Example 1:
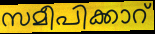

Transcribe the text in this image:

സമീപിക്കാറ്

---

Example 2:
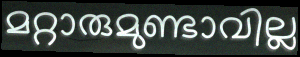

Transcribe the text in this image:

മറ്റാരുമുണ്ടാവില്ല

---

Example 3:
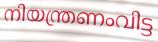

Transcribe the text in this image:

നിയന്ത്രണംവിട്ട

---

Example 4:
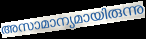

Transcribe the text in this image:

അസാമാന്യമായിരുന്നു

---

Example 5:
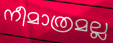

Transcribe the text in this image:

നീമാത്രമല്ല